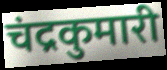
चंद्रकुमारी